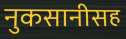
नुकसानीसह